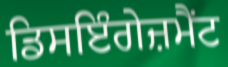
ਡਿਸਇੰਗੇਜ਼ਮੈਂਟ